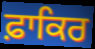
ਫ਼ਾਕਿਰ